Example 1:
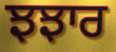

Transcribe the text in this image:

ਝਝਾਰ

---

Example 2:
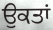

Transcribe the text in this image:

ਉਕਤਾਂ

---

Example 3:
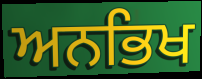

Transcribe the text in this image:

ਅਨਭਿਖ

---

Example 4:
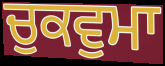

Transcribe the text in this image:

ਚੁਕਵੁਮਾ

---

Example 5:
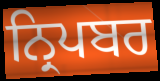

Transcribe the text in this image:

ਨ੍ਰਿਪਬਰ